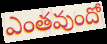
ఎంతవుందో